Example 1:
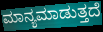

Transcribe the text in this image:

ಮಾನ್ಯಮಾಡುತ್ತದೆ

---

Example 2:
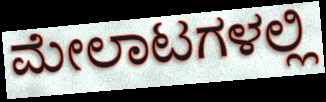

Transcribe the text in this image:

ಮೇಲಾಟಗಳಲ್ಲಿ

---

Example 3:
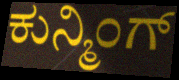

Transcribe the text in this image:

ಕುನ್ಮಿಂಗ್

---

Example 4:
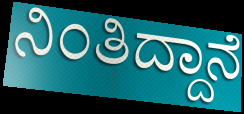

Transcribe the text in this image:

ನಿಂತಿದ್ದಾನೆ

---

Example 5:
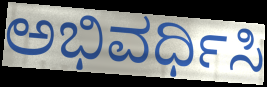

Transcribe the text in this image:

ಅಭಿವರ್ಧಿಸಿ